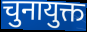
चुनायुक्त